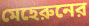
মেহেরুনের